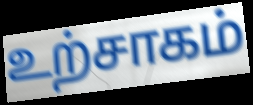
உற்சாகம்